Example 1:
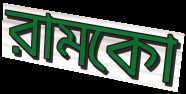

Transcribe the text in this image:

রামকো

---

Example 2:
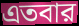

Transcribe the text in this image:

এতবার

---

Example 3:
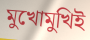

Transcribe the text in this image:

মুখোমুখিই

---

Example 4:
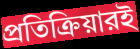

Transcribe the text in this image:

প্রতিক্রিয়ারই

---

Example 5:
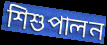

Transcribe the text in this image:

শিশুপালন